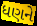
ધણને